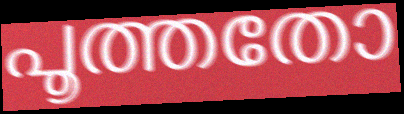
പൂത്തതോ